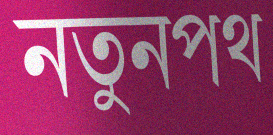
নতুনপথ